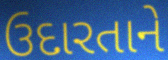
ઉદારતાને